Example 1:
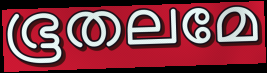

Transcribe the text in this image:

ഭൂതലമേ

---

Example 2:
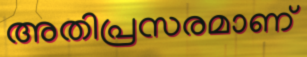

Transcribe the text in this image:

അതിപ്രസരമാണ്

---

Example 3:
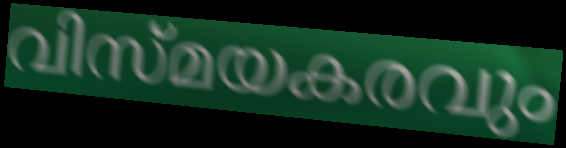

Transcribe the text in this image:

വിസ്മയകരവും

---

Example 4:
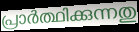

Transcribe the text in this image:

പ്രാർത്ഥിക്കുന്നതു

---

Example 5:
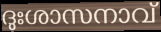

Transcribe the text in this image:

ദുഃശാസനാവ്